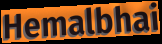
Hemalbhai